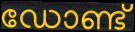
ഡോണ്ട്